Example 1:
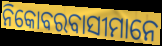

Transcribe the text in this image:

ନିକୋବରବାସୀମାନେ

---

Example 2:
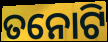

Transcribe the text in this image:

ତନୋଟି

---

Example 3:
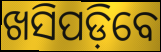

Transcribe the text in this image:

ଖସିପଡ଼ିବେ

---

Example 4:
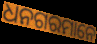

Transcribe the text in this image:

ଧନଗରମାନେ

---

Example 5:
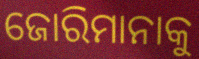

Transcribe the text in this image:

ଜୋରିମାନାକୁ